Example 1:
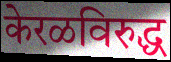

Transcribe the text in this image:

केरळविरुद्ध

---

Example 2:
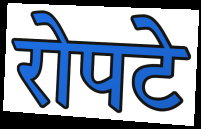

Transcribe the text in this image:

रोपटे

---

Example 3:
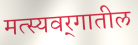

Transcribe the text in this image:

मत्स्यवर्गातील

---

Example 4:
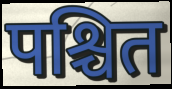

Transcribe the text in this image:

पश्चित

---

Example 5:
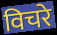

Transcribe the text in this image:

विचरे